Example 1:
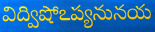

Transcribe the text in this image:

విద్విషోఽప్యనునయ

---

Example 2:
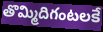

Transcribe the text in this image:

తొమ్మిదిగంటలకే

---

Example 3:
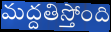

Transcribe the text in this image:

మద్దతిస్తోంది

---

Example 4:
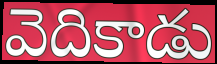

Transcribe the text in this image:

వెదికాడు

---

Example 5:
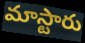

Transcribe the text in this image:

మాస్టారు